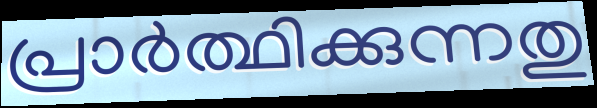
പ്രാർത്ഥിക്കുന്നതു